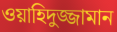
ওয়াহিদুজ্জামান